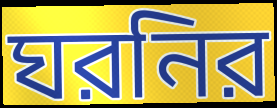
ঘরনির